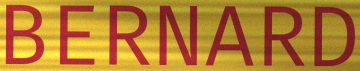
BERNARD